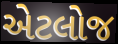
એટલોજ